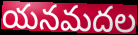
యనమదల